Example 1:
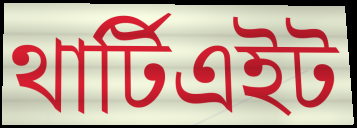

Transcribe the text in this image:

থার্টিএইট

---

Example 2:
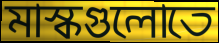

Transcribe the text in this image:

মাস্কগুলোতে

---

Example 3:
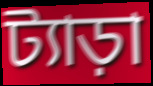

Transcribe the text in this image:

ট্যাড়া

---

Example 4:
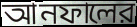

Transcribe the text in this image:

আনফালের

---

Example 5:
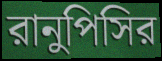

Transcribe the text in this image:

রানুপিসির